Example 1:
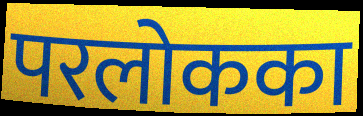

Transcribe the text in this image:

परलोकका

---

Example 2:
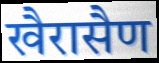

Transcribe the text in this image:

खैरासैण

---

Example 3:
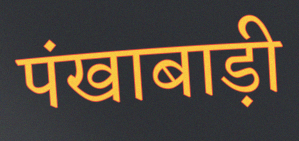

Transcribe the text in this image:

पंखाबाड़ी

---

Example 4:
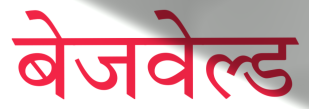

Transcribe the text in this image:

बेजवेल्ड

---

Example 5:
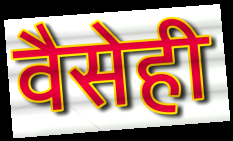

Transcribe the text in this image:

वैसेही